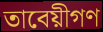
তাবেয়ীগণ